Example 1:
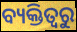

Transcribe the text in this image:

ବ୍ୟକ୍ତିତ୍ଵରୁ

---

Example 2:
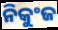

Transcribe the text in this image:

ନିକୁଂଜ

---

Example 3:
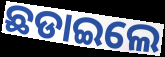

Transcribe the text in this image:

ଛଡାଇଲେ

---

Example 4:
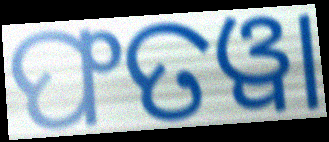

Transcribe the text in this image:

ଫତୱା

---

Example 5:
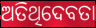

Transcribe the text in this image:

ଅତିଥିଦେବତା